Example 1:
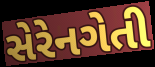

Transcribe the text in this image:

સેરેનગેતી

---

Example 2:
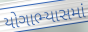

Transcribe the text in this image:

યોગાભ્યાસમાં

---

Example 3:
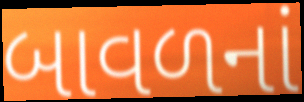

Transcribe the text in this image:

બાવળનાં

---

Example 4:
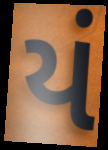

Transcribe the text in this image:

યં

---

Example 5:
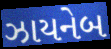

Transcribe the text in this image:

ઝાયનેબ